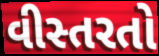
વીસ્તરતો